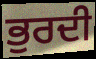
ਭੁਰਦੀ